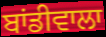
ਬਾਂਡੀਵਾਲਾ